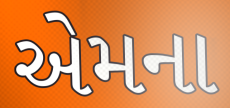
એમના